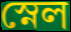
স্নেল